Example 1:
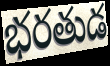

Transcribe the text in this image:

భరతుడ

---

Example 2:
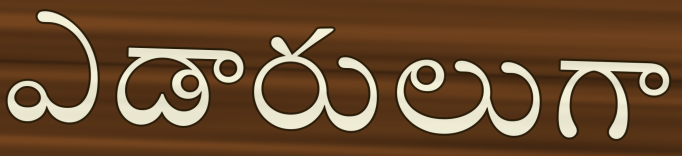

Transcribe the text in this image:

ఎడారులుగా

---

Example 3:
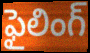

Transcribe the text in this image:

ఫైలింగ్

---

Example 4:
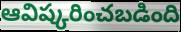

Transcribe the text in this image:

ఆవిష్కరించబడింది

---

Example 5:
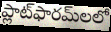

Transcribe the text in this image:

ప్లాట్‌ఫారమ్‌లలో